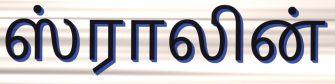
ஸ்ராலின்